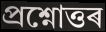
প্ৰশ্নোত্তৰ